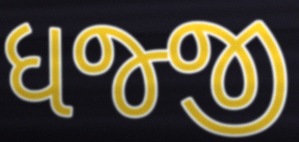
ધજ્જી